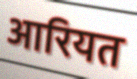
आरियत